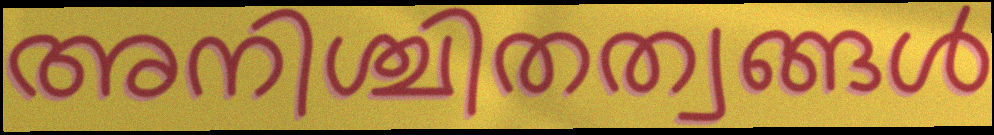
അനിശ്ചിതത്വങ്ങൾ